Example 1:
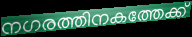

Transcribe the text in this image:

നഗരത്തിനകത്തേക്ക്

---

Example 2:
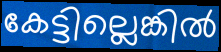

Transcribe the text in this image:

കേട്ടില്ലെങ്കിൽ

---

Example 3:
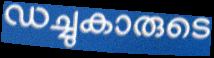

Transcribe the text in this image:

ഡച്ചുകാരുടെ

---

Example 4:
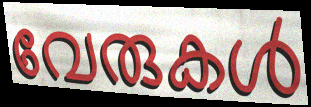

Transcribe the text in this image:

വേരുകൾ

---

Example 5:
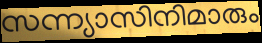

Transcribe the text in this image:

സന്ന്യാസിനിമാരും